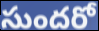
సుందరో